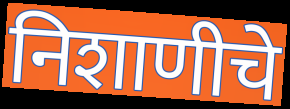
निशाणीचे